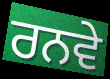
ਰਨਵੇ